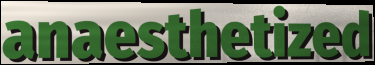
anaesthetized